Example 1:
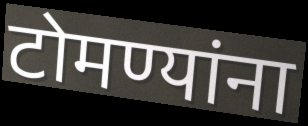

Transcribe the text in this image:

टोमण्यांना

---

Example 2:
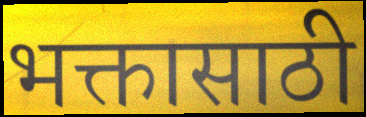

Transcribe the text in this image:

भक्तासाठी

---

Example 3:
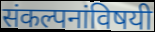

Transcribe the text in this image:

संकल्पनांविषयी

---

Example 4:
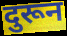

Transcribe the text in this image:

दुरून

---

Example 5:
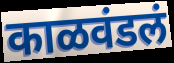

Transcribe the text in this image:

काळवंडलं